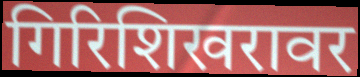
गिरिशिखरावर